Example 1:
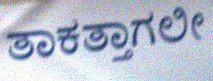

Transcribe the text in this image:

ತಾಕತ್ತಾಗಲೀ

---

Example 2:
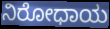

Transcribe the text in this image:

ನಿರೋಧಾಯ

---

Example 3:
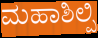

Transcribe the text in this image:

ಮಹಾಶಿಲ್ಪಿ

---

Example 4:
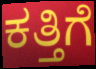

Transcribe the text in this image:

ಕತ್ತಿಗೆ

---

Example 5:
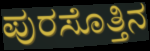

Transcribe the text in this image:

ಪುರಸೊತ್ತಿನ